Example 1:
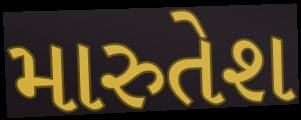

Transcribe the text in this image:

મારુતેશ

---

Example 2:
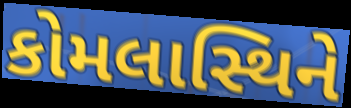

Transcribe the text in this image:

કોમલાસ્થિને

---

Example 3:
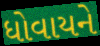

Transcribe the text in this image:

ધોવાયને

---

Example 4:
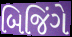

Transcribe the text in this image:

બિજિંગે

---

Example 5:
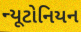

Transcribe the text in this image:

ન્યૂટોનિયન